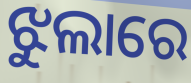
ଝୁଲାରେ